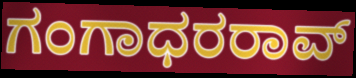
ಗಂಗಾಧರರಾವ್